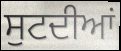
ਸੁਟਦੀਆਂ